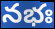
నభః